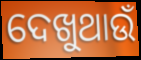
ଦେଖୁଥାଉଁ